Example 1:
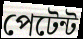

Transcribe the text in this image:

পেটেন্ট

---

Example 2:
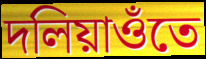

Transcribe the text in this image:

দলিয়াওঁতে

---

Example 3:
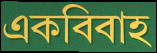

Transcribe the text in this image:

একবিবাহ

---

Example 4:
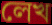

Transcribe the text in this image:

লেখ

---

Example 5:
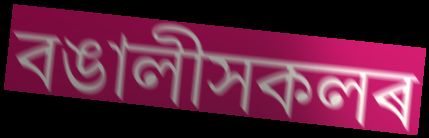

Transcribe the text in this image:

বঙালীসকলৰ